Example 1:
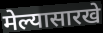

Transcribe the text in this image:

मेल्यासारखे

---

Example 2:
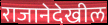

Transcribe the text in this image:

राजानेदेखील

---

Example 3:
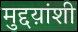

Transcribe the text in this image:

मुद्दय़ांशी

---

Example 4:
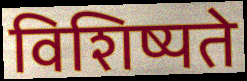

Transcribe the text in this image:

विशिष्यते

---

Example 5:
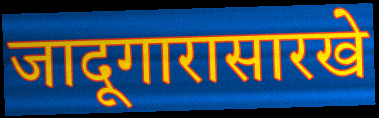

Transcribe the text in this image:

जादूगारासारखे